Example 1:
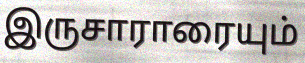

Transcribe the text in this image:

இருசாராரையும்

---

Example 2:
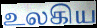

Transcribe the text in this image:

உலகிய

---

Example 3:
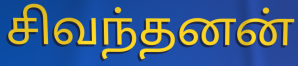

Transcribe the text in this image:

சிவந்தனன்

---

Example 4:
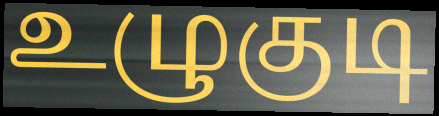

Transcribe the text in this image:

உழுகுடி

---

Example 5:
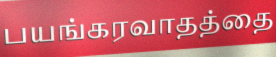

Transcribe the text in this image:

பயங்கரவாதத்தை